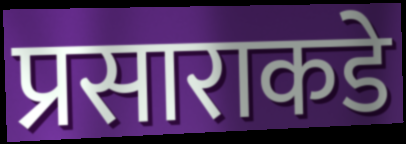
प्रसाराकडे